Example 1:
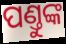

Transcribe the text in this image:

ପଣ୍ତୁଙ୍କ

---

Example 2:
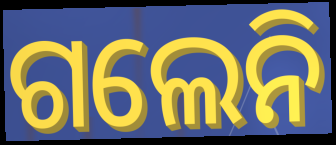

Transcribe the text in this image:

ଗଲେନି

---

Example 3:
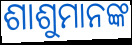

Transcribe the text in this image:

ଶାଶୁମାନଙ୍କ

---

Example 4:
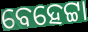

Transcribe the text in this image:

ବେହେଟ୍ଟା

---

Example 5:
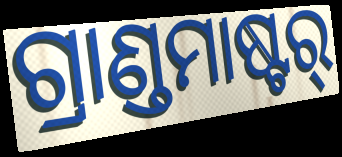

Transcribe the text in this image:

ଗ୍ରାଣ୍ଡମାଷ୍ଟର୍